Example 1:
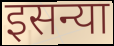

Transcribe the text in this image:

इसन्या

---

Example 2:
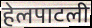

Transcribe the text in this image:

हेलपाटली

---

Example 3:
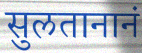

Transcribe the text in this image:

सुलतानानं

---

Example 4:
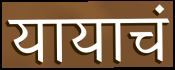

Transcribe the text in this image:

यायाचं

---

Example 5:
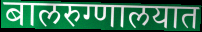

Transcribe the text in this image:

बालरुग्णालयात